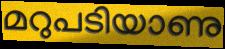
മറുപടിയാണു